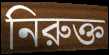
নিরুক্ত